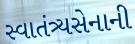
સ્વાતંત્ર્યસેનાની